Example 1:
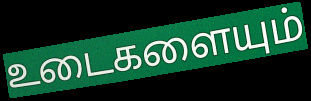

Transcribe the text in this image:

உடைகளையும்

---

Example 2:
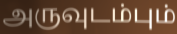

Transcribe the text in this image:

அருவுடம்பும்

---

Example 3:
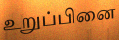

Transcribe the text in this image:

உறுப்பினை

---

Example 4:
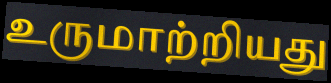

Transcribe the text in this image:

உருமாற்றியது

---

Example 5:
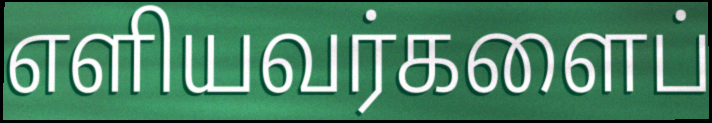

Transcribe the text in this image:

எளியவர்களைப்